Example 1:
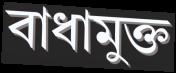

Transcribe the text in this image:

বাধামুক্ত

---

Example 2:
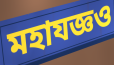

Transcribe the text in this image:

মহাযজ্ঞও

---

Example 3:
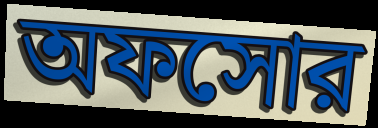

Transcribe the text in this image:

অফসোর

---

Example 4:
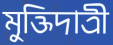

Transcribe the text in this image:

মুক্তিদাত্রী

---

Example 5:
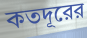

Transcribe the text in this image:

কতদূরের